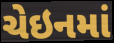
ચેઇનમાં